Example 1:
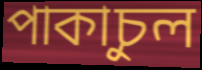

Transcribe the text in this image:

পাকাচুল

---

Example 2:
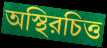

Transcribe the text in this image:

অস্থিরচিত্ত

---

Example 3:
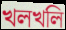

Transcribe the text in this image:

খলখলি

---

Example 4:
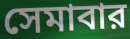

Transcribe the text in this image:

সেমাবার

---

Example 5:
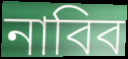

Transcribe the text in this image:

নাবিব